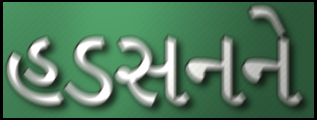
હડસનને